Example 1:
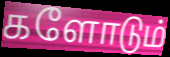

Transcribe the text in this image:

களோடும்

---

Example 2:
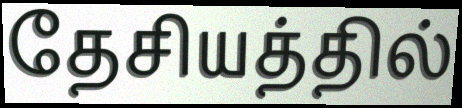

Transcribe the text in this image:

தேசியத்தில்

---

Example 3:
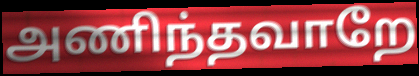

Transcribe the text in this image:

அணிந்தவாறே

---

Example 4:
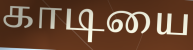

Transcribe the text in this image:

காடியை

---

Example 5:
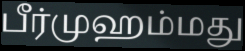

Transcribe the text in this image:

பீர்முஹம்மது